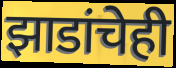
झाडांचेही